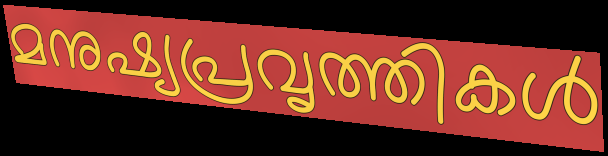
മനുഷ്യപ്രവൃത്തികൾ